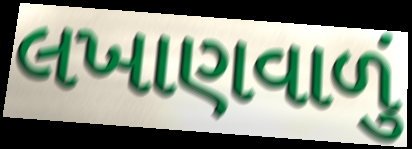
લખાણવાળું